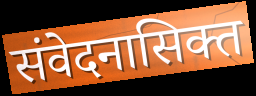
संवेदनासिक्त